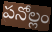
పనోల్లం